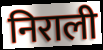
निराली